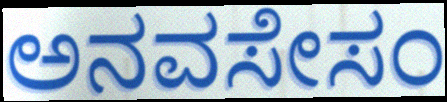
ಅನವಸೇಸಂ